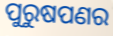
ପୁରୁଷପଣର